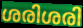
ശരിശരി